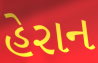
હેરાન